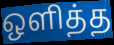
ஒளித்த